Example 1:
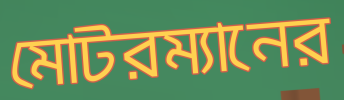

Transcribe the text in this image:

মোটরম্যানের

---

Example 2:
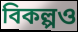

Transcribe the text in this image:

বিকল্পও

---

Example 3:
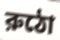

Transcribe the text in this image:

রুঠো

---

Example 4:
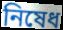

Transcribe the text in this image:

নিষেধ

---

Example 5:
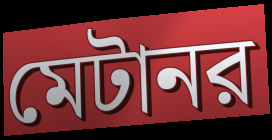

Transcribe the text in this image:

মেটানর